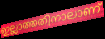
ഇല്ലാത്തതിനാലാണ്